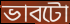
ভাবটো